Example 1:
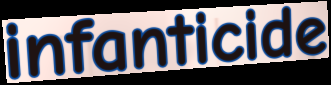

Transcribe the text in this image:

infanticide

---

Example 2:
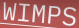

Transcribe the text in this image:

WIMPS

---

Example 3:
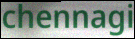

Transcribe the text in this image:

chennagi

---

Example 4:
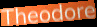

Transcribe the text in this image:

Theodore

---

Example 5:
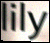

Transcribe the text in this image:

lily